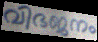
വിഭജനം